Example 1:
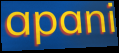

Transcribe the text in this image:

apani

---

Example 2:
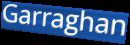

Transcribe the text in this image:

Garraghan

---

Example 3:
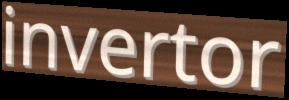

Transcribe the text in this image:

invertor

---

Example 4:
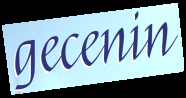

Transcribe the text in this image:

gecenin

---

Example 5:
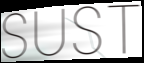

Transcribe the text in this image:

SUST